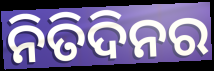
ନିତିଦିନର